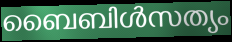
ബൈബിൾസത്യം